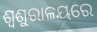
ଶ୍ଵଶୁରାଳୟରେ